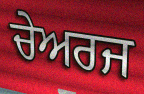
ਚੇਅਰਜ